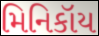
મિનિકૉય